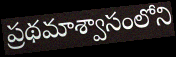
ప్రథమాశ్వాసంలోని